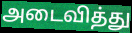
அடைவித்து